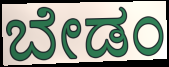
ಬೇಡಂ